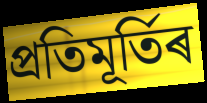
প্ৰতিমূৰ্তিৰ